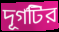
দূর্গটির